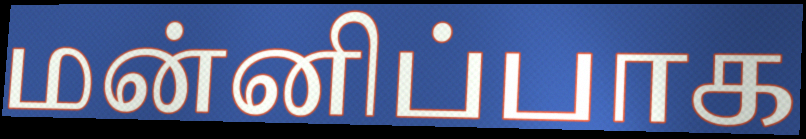
மன்னிப்பாக